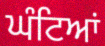
ਘੰਟਿਆਂ